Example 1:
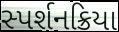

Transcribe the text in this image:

સ્પર્શનક્રિયા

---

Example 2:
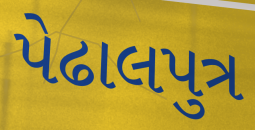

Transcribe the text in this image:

પેઢાલપુત્ર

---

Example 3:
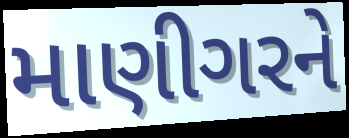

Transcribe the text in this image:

માણીગરને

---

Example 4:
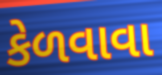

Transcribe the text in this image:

કેળવાવા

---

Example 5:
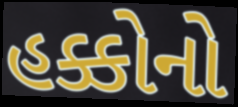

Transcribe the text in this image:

હક્કોનો